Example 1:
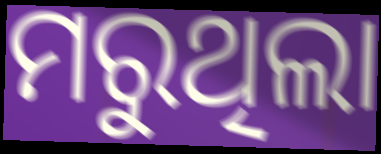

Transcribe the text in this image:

ମରୁଥିଲା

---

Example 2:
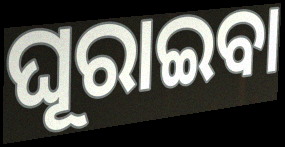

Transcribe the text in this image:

ଘୂରାଇବା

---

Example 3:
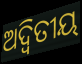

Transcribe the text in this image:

ଅଦ୍ବିତୀୟ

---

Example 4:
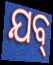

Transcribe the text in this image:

ଯବ୍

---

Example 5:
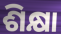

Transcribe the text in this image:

ଶିକ୍ଷା